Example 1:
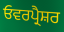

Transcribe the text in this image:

ਓਵਰਪ੍ਰੈਸ਼ਰ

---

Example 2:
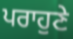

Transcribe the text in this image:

ਪਰਾਹੁਣੇ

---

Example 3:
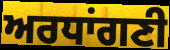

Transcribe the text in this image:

ਅਰਧਾਂਗਣੀ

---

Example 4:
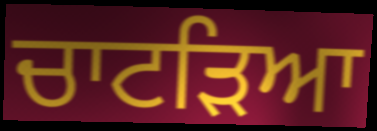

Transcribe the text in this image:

ਚਾਟੜਿਆ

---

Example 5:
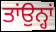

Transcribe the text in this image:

ਤਾਂਉਨ੍ਹਾਂ